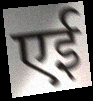
एई